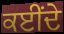
ਕਈਂਦੇ